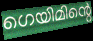
ഗെയിമിന്റെ